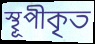
স্থূপীকৃত